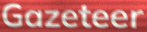
Gazeteer